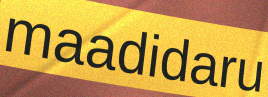
maadidaru